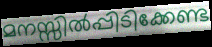
മനസ്സിൽപ്പിടിക്കേണ്ട